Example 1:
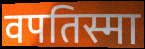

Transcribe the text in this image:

वपतिस्मा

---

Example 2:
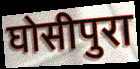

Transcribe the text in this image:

घोसीपुरा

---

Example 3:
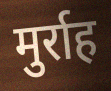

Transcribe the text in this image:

मुर्राह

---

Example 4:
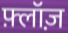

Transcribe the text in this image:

फ़्लॉज़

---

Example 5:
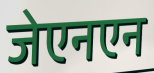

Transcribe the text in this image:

जेएनएन